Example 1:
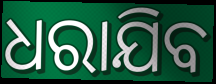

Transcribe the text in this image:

ଧରାଯିବ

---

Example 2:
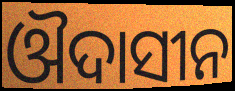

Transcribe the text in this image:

ଔଦାସୀନ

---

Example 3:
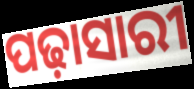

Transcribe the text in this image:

ପଢ଼ାସାରୀ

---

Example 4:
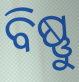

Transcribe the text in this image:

ବିଷ୍ଣୁ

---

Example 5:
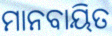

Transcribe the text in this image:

ମାନବାୟିତ